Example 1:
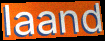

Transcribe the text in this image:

laand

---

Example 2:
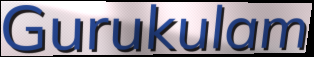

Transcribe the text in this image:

Gurukulam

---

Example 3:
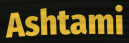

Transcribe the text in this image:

Ashtami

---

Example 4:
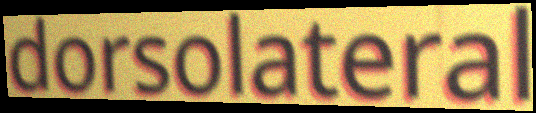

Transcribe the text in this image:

dorsolateral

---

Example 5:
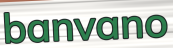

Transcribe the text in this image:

banvano